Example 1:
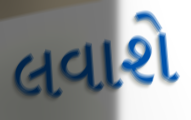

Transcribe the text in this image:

લવાશે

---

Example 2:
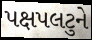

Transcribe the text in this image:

પક્ષપલટુને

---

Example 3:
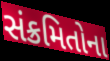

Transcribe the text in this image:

સંક્રમિતોના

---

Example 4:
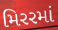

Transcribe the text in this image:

મિરરમાં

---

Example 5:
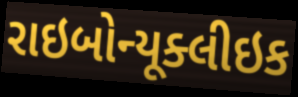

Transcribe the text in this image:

રાઇબોન્યૂક્લીઇક